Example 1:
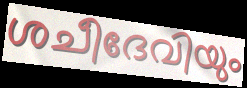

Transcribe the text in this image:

ശചീദേവിയും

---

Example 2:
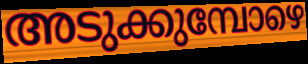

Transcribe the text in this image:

അടുക്കുമ്പോഴെ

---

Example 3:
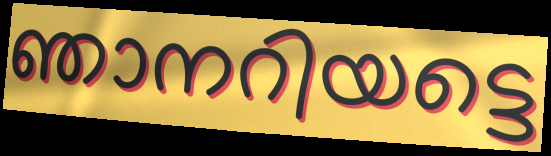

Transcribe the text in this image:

ഞാനറിയട്ടെ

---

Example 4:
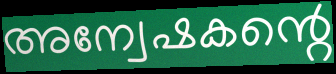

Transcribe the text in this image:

അന്വേഷകന്റെ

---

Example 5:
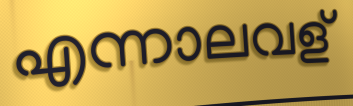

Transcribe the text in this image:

എന്നാലവള്